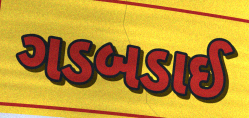
ગડબડાઈ